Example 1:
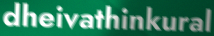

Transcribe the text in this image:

dheivathinkural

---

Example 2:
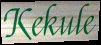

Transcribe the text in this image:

Kekule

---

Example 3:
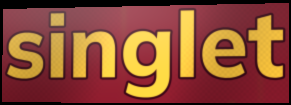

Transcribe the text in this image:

singlet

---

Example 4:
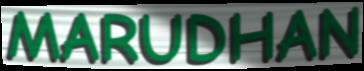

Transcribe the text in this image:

MARUDHAN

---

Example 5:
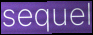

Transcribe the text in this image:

sequel